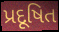
પ્રદૂષિત